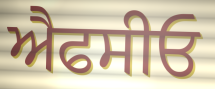
ਐਫਸੀਓ